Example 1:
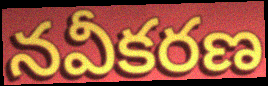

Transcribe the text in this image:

నవీకరణ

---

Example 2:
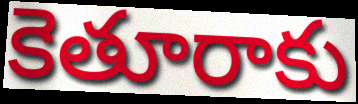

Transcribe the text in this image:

కెతూరాకు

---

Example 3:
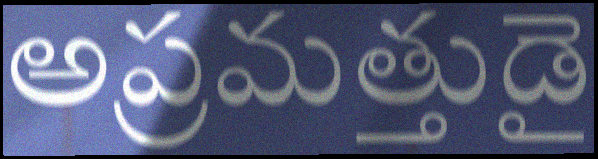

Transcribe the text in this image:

అప్రమత్తుడై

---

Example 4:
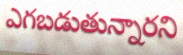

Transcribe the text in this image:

ఎగబడుతున్నారని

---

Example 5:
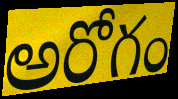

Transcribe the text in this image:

అరోగం